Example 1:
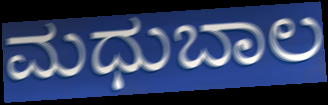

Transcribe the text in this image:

ಮಧುಬಾಲ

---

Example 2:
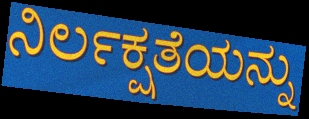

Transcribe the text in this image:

ನಿರ್ಲಕ್ಷತೆಯನ್ನು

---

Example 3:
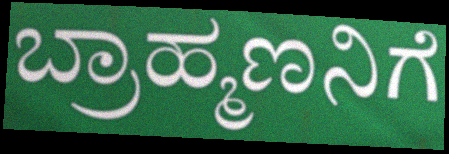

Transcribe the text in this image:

ಬ್ರಾಹ್ಮಣನಿಗೆ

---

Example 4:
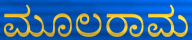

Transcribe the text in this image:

ಮೂಲರಾಮ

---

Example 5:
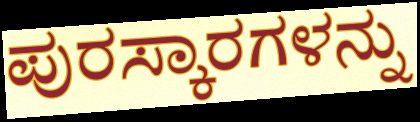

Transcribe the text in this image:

ಪುರಸ್ಕಾರಗಳನ್ನು